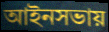
আইনসভায়